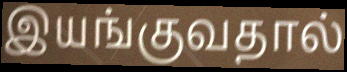
இயங்குவதால்